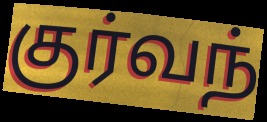
குர்வந்